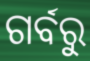
ଗର୍ବରୁ